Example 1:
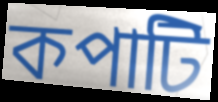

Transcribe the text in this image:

কপাটি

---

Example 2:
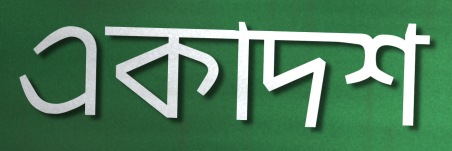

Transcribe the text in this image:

একাদশ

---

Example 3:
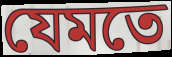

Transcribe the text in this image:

যেমতে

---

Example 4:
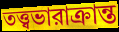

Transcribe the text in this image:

তত্ত্বভারাক্রান্ত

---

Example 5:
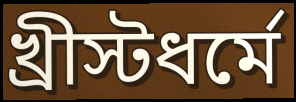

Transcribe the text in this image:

খ্রীস্টধর্মে